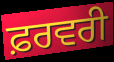
ਫ਼ਰਵਰੀ